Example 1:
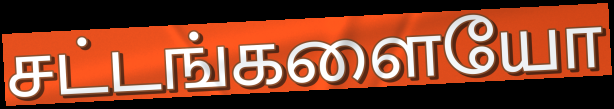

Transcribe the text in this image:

சட்டங்களையோ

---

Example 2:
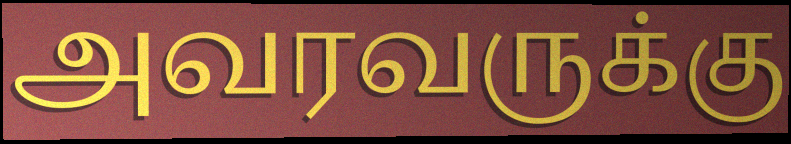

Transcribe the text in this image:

அவரவருக்கு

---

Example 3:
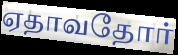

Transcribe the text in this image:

ஏதாவதோர்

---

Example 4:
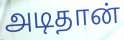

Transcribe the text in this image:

அடிதான்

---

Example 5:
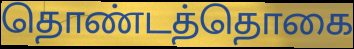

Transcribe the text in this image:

தொண்டத்தொகை